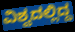
ವಿಶ್ವದಲ್ಲಿದ್ದ